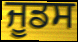
ਜੂਡਸ